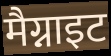
मैग्नाइट